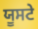
ਯੂਸਟੇ